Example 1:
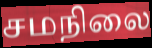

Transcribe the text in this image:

சமநிலை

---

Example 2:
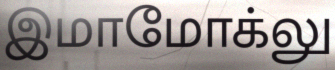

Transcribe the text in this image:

இமாமோக்லு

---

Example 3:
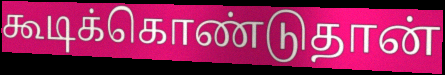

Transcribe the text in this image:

கூடிக்கொண்டுதான்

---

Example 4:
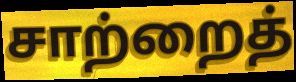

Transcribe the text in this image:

சாற்றைத்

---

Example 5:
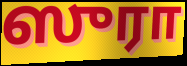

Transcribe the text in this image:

ஸுரா